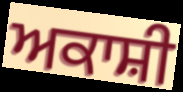
ਅਕਾਸ਼ੀ